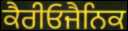
ਕੈਰੀਓਜੈਨਿਕ